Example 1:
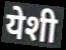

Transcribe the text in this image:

येशी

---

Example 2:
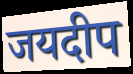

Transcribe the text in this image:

जयदीप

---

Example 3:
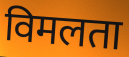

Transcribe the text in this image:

विमलता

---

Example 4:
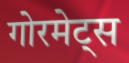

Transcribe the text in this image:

गोरमेट्स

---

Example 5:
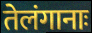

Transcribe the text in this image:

तेलंगानाः